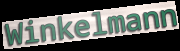
Winkelmann